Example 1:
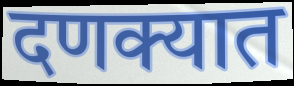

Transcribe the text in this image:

दणक्यात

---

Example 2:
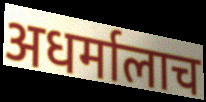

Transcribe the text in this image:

अधर्मालाच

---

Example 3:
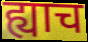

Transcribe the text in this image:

ह्याच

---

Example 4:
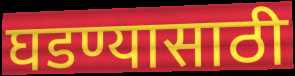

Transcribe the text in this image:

घडण्यासाठी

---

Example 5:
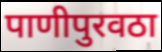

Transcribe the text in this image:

पाणीपुरवठा